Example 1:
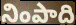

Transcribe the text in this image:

నింపాది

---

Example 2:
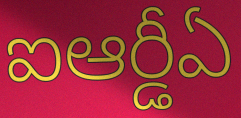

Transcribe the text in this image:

ఐఆర్డీఏ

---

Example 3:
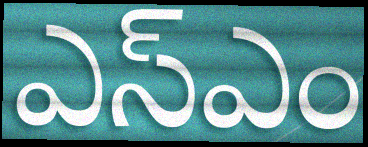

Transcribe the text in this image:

ఎస్ఎం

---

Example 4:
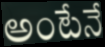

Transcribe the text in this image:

అంటేనే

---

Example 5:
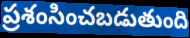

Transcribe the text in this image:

ప్రశంసించబడుతుంది